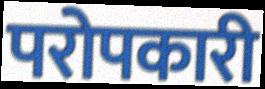
परोपकारी